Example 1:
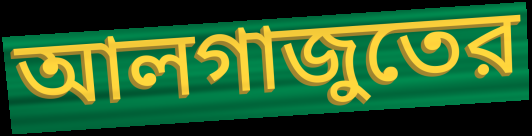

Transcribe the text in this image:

আলগাজুতের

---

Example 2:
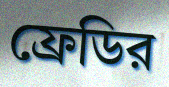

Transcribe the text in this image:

ফ্রেডির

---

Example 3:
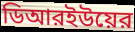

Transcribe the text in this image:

ডিআরইউয়ের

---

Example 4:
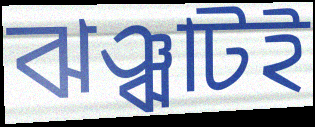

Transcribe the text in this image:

ঝঞ্ঝাটই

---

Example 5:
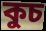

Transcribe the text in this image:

কুচ